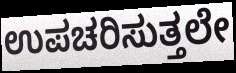
ಉಪಚರಿಸುತ್ತಲೇ